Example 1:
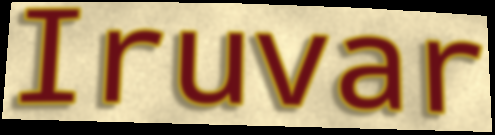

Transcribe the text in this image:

Iruvar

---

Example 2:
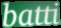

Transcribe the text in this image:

batti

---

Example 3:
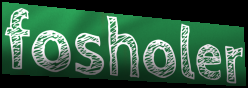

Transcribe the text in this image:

fosholer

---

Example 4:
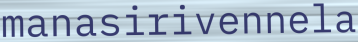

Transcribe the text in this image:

manasirivennela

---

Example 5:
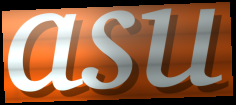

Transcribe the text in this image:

asu